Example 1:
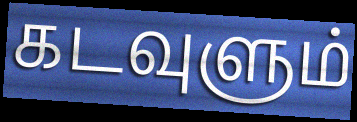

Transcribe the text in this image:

கடவுளும்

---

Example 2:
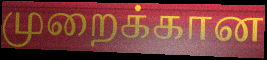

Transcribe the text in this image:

முறைக்கான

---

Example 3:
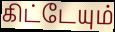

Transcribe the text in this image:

கிட்டேயும்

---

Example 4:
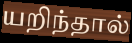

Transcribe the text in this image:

யறிந்தால்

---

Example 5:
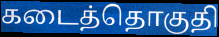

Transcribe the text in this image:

கடைத்தொகுதி